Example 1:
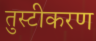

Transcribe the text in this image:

तुस्टीकरण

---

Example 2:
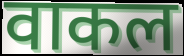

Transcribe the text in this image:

वाकल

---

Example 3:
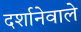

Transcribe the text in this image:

दर्शानेवाले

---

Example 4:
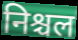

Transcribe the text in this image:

निश्चल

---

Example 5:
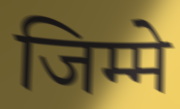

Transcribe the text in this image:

जिम्मे